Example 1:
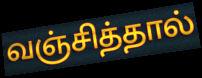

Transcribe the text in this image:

வஞ்சித்தால்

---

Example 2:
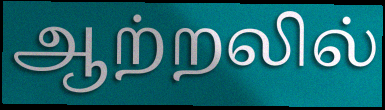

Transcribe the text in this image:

ஆற்றலில்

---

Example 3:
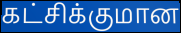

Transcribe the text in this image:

கட்சிக்குமான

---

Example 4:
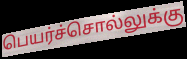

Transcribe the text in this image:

பெயர்ச்சொல்லுக்கு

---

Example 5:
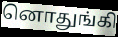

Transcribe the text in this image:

னொதுங்கி